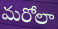
మరోలా